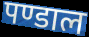
पण्डाल